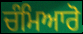
ਚੰਮਿਆਰੋ